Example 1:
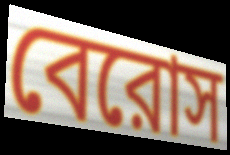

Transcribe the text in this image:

বেরোস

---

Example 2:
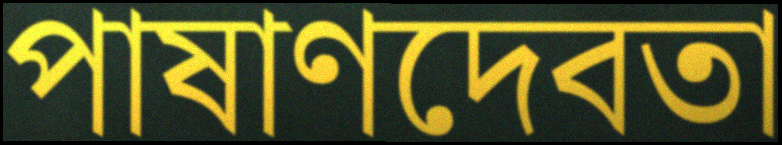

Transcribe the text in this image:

পাষাণদেবতা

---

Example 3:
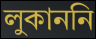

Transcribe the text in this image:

লুকাননি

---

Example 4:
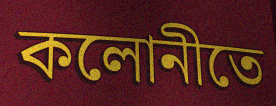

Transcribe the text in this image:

কলোনীতে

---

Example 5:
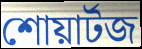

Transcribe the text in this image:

শোয়ার্টজ